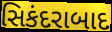
સિકંદરાબાદ